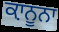
ਕ਼ਾਨੂਨਾ